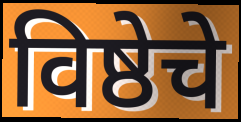
विष्ठेचे